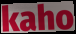
kaho